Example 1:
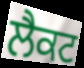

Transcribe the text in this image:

ਲੈਕਟ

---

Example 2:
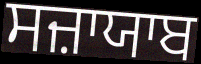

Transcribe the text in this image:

ਸਜ਼ਾਯਾਬ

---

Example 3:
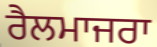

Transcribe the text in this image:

ਰੈਲਮਾਜਰਾ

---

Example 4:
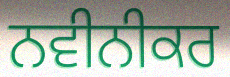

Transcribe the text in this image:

ਨਵੀਨੀਕਰ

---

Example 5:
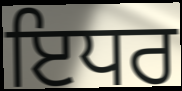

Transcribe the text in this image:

ਇਧਰ